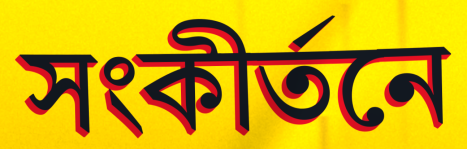
সংকীর্তনে